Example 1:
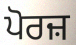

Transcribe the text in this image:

ਪੋਰਜ਼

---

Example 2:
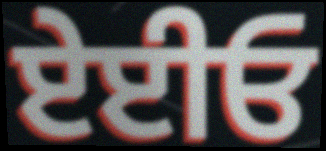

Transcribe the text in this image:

ਏਈਓ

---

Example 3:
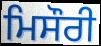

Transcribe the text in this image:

ਮਿਸੌਰੀ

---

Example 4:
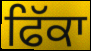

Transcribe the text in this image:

ਫਿੱਕਾ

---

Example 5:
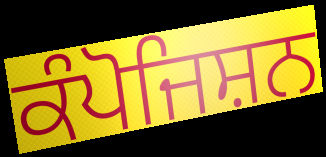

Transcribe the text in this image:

ਕੰਪੋਜਿਸ਼ਨ